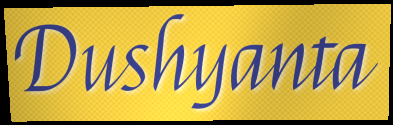
Dushyanta